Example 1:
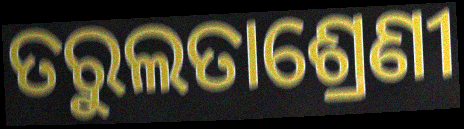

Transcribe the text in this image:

ତରୁଲତାଶ୍ରେଣୀ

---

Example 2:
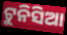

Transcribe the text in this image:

ଟୁନିସିଆ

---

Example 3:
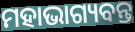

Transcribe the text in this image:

ମହାଭାଗ୍ୟବନ୍ତ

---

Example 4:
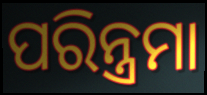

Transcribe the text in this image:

ପରିନ୍ତ୍ରମା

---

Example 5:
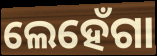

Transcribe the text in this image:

ଲେହେଁଗା